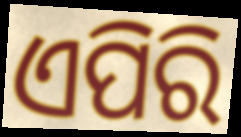
ଏପିରି